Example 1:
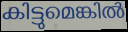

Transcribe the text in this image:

കിട്ടുമെങ്കിൽ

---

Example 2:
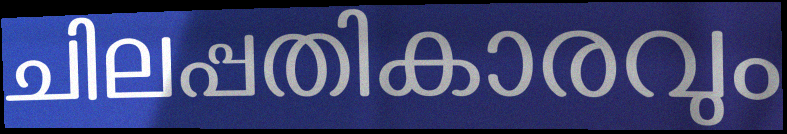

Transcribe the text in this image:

ചിലപ്പതികാരവും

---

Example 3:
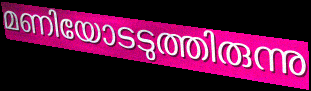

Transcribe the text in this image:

മണിയോടടുത്തിരുന്നു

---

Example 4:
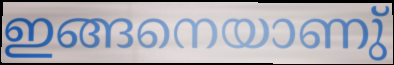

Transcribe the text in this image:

ഇങ്ങനെയാണു്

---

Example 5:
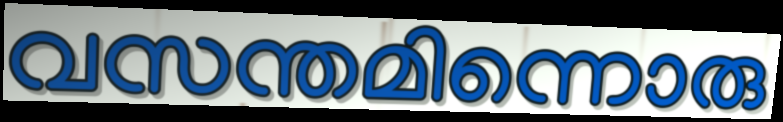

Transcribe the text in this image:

വസന്തമിന്നൊരു